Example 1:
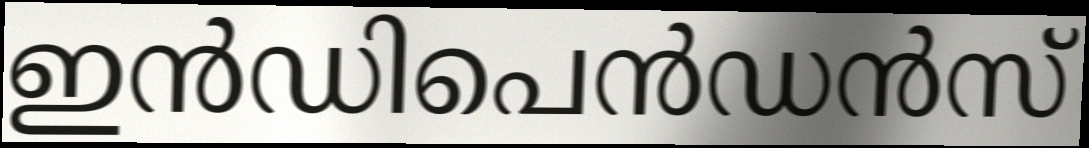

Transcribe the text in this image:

ഇൻഡിപെൻഡൻസ്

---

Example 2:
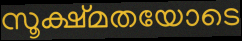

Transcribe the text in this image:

സൂക്ഷ്മതയോടെ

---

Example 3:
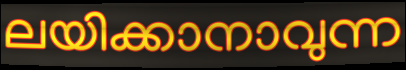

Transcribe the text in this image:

ലയിക്കാനാവുന്ന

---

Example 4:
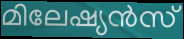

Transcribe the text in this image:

മിലേഷ്യൻസ്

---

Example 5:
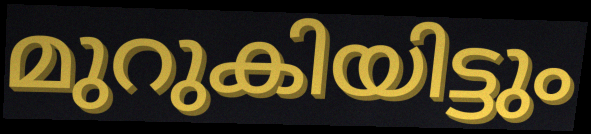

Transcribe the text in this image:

മുറുകിയിട്ടും